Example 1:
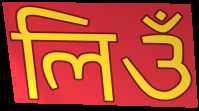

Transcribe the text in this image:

লিওঁ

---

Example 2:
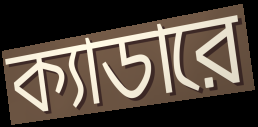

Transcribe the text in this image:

ক্যাডারে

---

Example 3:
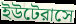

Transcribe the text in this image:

ইউটেরাসে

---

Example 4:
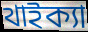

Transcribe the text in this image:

থাইক্যা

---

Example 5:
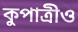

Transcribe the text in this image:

কুপাত্রীও